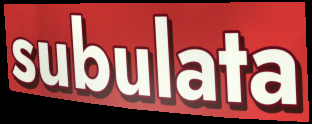
subulata